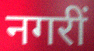
नगरीं